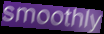
smoothly